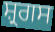
ਸ਼੍ਰਗਸ